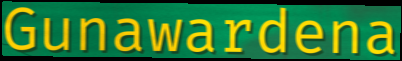
Gunawardena